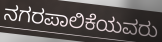
ನಗರಪಾಲಿಕೆಯವರು